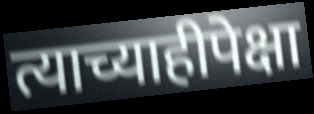
त्याच्याहीपेक्षा